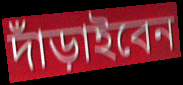
দাঁড়াইবেন